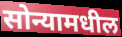
सोन्यामधील